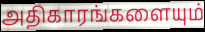
அதிகாரங்களையும்